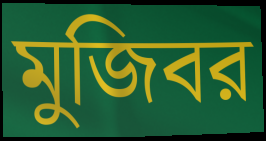
মুজিবর